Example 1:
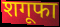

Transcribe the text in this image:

शगूफा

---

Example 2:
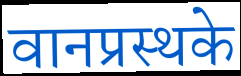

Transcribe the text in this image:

वानप्रस्थके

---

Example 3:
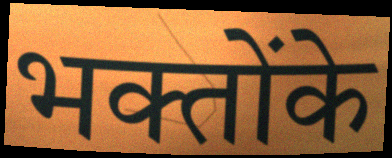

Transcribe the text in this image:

भक्तोंके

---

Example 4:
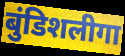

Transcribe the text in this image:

बुंडिशलीगा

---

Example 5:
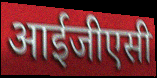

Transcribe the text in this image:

आईजीएसी